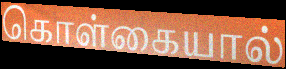
கொள்கையால்